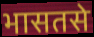
भासतसे